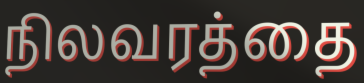
நிலவரத்தை